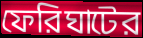
ফেরিঘাটের